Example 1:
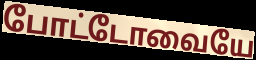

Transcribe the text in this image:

போட்டோவையே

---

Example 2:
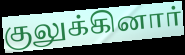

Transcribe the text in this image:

குலுக்கினார்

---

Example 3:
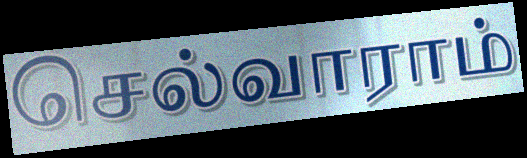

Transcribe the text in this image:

செல்வாராம்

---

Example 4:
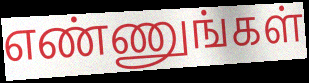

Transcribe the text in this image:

எண்ணுங்கள்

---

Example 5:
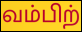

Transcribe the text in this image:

வம்பிற்